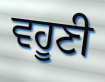
ਵਹੂਣੀ